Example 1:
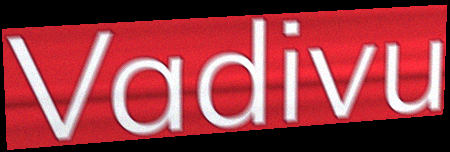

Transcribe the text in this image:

Vadivu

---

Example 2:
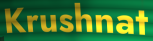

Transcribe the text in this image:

Krushnat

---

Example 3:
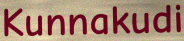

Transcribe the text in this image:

Kunnakudi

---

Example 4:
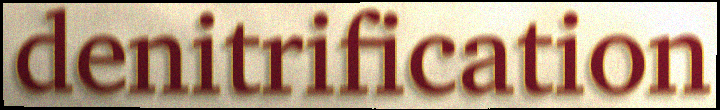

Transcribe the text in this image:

denitrification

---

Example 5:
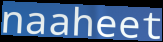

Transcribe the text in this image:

naaheet